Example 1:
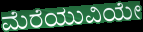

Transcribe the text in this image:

ಮೆರೆಯುವಿಯೇ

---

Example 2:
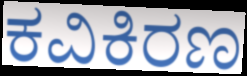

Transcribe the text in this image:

ಕವಿಕಿರಣ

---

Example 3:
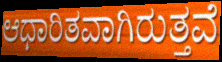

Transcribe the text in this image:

ಆಧಾರಿತವಾಗಿರುತ್ತವೆ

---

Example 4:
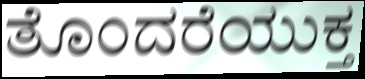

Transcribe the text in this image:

ತೊಂದರೆಯುಕ್ತ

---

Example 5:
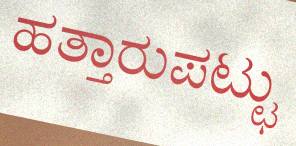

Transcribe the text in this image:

ಹತ್ತಾರುಪಟ್ಟು